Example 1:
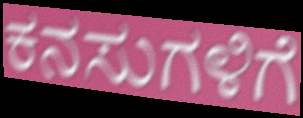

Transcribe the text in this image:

ಕನಸುಗಳಿಗೆ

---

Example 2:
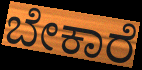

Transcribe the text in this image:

ಬೇಕಾರೆ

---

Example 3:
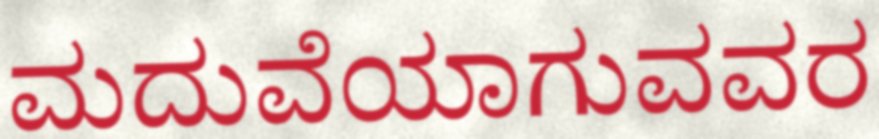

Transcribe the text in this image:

ಮದುವೆಯಾಗುವವರ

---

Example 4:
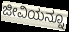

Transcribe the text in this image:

ಜೀವಿಯನ್ನೂ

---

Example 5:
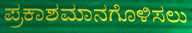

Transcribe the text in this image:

ಪ್ರಕಾಶಮಾನಗೊಳಿಸಲು